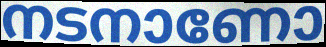
നടനാണോ